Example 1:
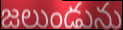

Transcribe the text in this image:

జలుండును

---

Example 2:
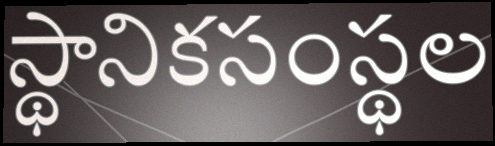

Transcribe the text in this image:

స్థానికసంస్థల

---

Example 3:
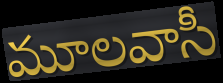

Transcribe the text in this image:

మూలవాసీ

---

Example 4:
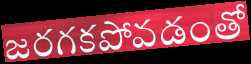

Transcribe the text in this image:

జరగకపోవడంతో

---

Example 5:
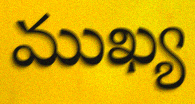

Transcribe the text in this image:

ముఖ్య